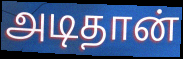
அடிதான்